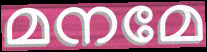
മനമേ